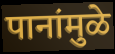
पानांमुळे